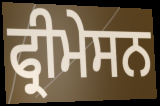
ਫ੍ਰੀਮੇਸਨ